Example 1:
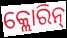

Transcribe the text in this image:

କ୍ଲୋରିନ୍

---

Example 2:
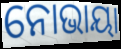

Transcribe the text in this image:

ନୋଭାୟା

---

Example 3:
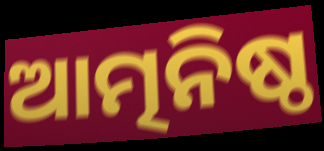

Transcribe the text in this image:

ଆତ୍ମନିଷ୍ଠ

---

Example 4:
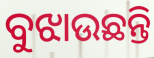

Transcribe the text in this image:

ବୁଝାଉଛନ୍ତି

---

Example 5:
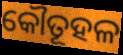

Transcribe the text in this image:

କୌତୂହଳ